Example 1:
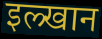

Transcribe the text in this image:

इल्खान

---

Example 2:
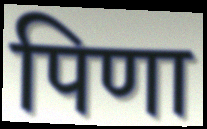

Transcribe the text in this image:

पिणा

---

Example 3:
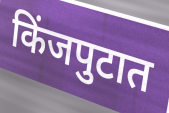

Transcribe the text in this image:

किंजपुटात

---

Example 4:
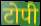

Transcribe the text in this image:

टोपी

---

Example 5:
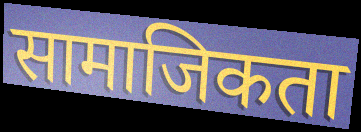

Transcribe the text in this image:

सामाजिकता